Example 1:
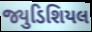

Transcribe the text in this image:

જ્યુડિશિયલ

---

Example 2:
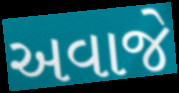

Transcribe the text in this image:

અવાજે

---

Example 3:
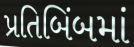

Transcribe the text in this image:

પ્રતિબિંબમાં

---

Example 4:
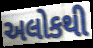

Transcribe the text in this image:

અલોકથી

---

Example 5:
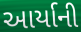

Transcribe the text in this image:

આર્યાની